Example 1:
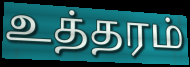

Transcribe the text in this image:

உத்தரம்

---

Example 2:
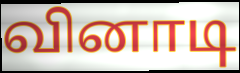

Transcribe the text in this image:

வினாடி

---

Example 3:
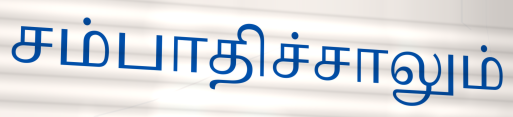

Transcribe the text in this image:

சம்பாதிச்சாலும்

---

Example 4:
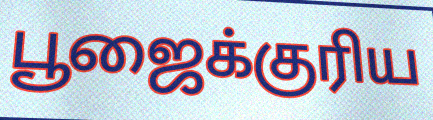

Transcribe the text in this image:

பூஜைக்குரிய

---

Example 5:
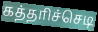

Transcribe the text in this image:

கத்தரிச்செடி